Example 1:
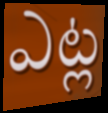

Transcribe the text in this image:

ఎట్ల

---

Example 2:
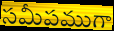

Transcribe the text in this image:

సమీపముగా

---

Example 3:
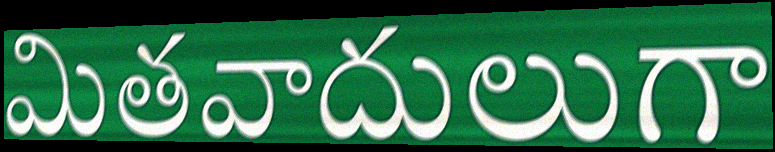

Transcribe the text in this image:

మితవాదులుగా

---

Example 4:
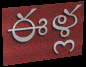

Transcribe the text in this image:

ఈళ్ల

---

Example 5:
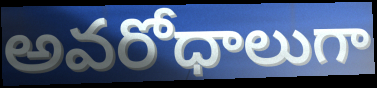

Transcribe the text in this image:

అవరోధాలుగా